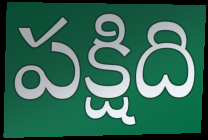
పక్షిది